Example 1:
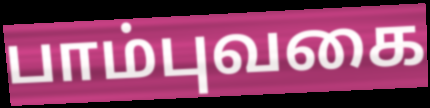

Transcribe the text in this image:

பாம்புவகை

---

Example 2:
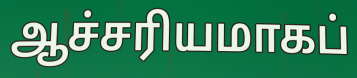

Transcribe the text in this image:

ஆச்சரியமாகப்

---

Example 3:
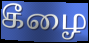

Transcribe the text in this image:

கீழை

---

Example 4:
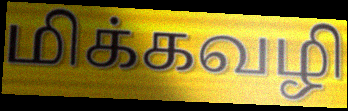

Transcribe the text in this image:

மிக்கவழி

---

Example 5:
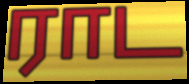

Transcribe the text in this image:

ராட